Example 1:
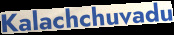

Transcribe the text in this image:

Kalachchuvadu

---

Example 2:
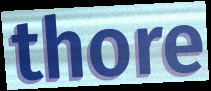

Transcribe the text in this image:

thore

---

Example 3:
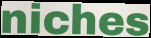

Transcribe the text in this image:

niches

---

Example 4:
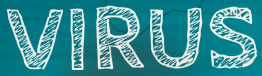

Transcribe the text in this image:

VIRUS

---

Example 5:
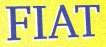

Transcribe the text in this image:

FIAT